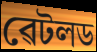
ৱেটলড